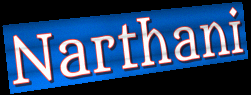
Narthani